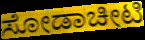
ಸೋಡಾಚೀಟಿ